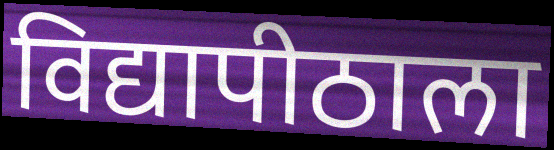
विद्यापीठाला